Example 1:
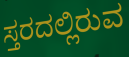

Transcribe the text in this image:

ಸ್ತರದಲ್ಲಿರುವ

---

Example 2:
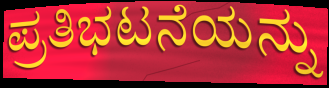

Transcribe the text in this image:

ಪ್ರತಿಭಟನೆಯನ್ನು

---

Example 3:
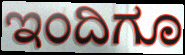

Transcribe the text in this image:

ಇಂದಿಗೂ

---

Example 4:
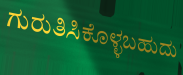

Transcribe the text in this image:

ಗುರುತಿಸಿಕೊಳ್ಳಬಹುದು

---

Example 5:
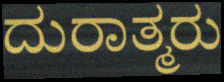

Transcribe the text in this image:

ದುರಾತ್ಮರು